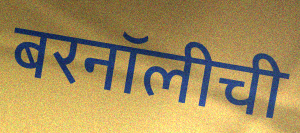
बरनॉलीची